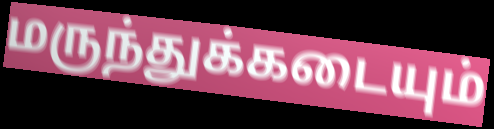
மருந்துக்கடையும்